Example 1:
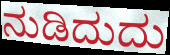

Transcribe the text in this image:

ನುಡಿದುದು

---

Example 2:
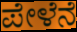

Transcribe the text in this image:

ಪೇಳೆನೆ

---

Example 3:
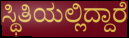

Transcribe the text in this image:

ಸ್ಥಿತಿಯಲ್ಲಿದ್ದಾರೆ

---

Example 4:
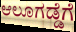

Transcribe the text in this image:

ಆಲೂಗಡ್ಡೆಗೆ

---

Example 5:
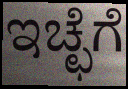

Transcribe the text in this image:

ಇಚ್ಛೆಗೆ